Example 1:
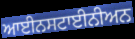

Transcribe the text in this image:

ਆਈਨਸਟਾਈਨੀਅਨ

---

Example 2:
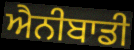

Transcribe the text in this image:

ਐਨੀਬਾਡੀ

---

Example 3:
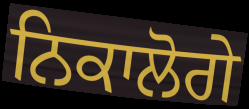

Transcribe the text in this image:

ਨਿਕਾਲੋਗੇ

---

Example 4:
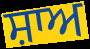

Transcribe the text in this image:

ਸ਼ਾਅ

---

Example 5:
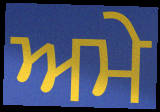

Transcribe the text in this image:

ਅਮੇ